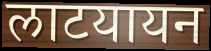
लाटयायन